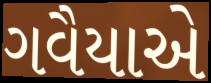
ગવૈયાએ